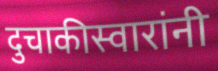
दुचाकीस्वारांनी